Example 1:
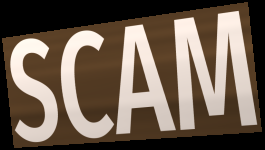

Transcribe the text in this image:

SCAM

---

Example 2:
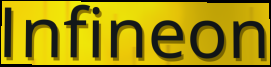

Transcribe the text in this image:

Infineon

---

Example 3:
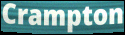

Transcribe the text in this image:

Crampton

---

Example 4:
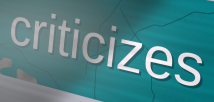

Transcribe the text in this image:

criticizes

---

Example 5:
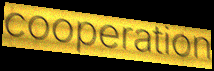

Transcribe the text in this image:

cooperation